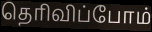
தெரிவிப்போம்